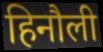
हिनौली